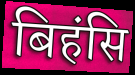
बिहंसि